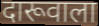
दारूवाला